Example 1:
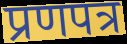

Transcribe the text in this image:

प्रणपत्र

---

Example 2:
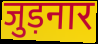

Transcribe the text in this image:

जुड़नार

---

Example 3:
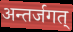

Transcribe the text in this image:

अन्तर्जगत्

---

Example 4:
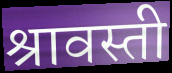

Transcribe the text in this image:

श्रावस्ती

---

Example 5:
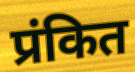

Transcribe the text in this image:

प्रंकित